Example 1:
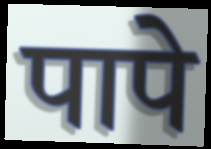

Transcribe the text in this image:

पापे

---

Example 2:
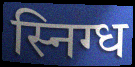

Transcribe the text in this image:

स्‍निग्ध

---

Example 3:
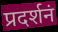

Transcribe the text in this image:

प्रदर्शनं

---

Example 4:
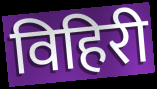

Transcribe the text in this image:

विहिरी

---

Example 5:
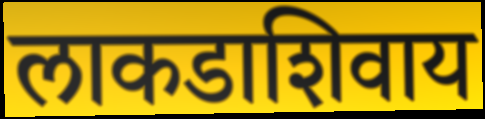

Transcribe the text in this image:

लाकडाशिवाय